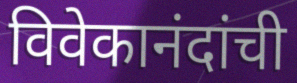
विवेकानंदांची